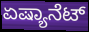
ಏಷ್ಯಾನೆಟ್